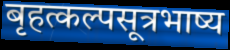
बृहत्कल्पसूत्रभाष्य